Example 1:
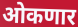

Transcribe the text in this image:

ओकणार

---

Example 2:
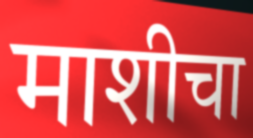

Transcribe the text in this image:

माशीचा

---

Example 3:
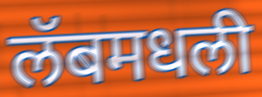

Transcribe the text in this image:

लॅबमधली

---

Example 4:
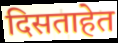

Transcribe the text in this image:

दिसताहेत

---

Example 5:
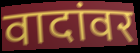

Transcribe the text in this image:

वादांवर